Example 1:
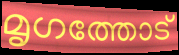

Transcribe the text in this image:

മൃഗത്തോട്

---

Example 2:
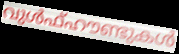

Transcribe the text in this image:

വുൾഫ്ഹൗണ്ടുകൾ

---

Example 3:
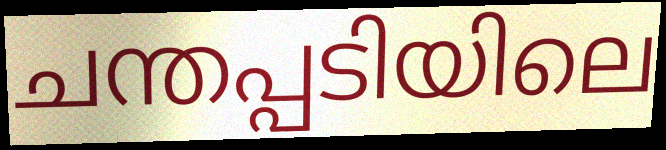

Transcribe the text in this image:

ചന്തപ്പടിയിലെ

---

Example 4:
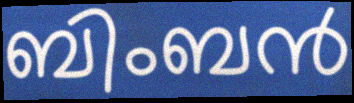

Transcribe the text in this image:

ബിംബൻ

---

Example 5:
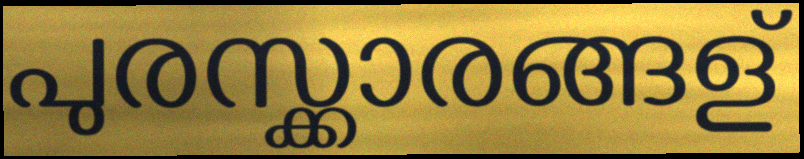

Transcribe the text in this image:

പുരസ്ക്കാരങ്ങള്